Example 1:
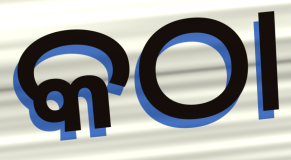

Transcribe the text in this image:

କଠା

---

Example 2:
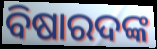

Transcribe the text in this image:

ବିଷାରଦଙ୍କ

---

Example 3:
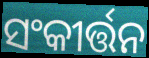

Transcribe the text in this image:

ସଂକୀର୍ତ୍ତନ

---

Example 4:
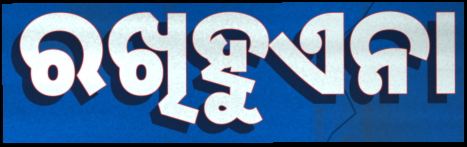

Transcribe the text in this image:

ରଖିହୁଏନା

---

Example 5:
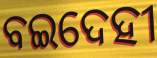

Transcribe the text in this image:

ବଇଦେହୀ